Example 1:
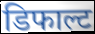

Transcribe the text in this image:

डिफाल्ट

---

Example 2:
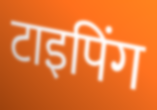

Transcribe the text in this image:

टाइपिंग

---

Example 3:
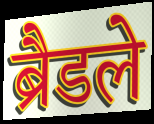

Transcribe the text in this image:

ब्रैडले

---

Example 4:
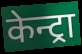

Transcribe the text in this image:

केन्ट्रा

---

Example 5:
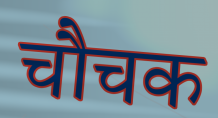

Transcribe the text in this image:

चौचक